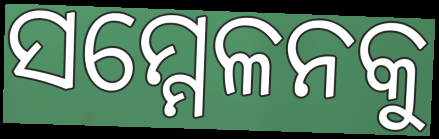
ସମ୍ମେଳନକୁ